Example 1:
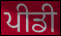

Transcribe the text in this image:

ਪੀਡੀ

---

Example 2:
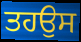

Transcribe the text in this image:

ਤਹਉਸ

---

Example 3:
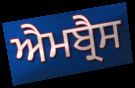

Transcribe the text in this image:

ਐਮਬ੍ਰੈਸ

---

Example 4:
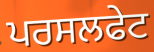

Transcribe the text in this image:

ਪਰਸਲਫੇਟ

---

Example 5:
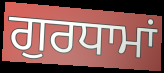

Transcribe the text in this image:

ਗੁਰਧਾਮਾਂ